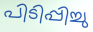
പിടിപ്പിച്ചു